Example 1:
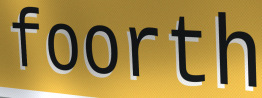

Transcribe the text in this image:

foorth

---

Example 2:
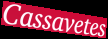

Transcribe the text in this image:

Cassavetes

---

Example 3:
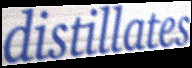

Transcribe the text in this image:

distillates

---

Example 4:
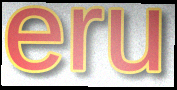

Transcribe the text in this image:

eru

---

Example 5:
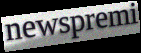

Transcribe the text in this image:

newspremi